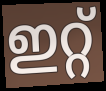
ഇറ്റ്